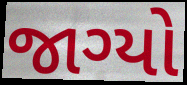
જાગ્યો